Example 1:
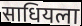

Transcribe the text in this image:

साधियला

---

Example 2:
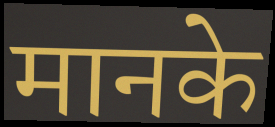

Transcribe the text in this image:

मानके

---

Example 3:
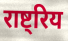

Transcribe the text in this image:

राष्ट्रिय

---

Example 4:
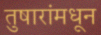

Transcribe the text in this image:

तुषारांमधून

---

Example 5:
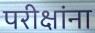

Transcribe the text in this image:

परीक्षांना